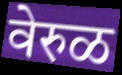
वेरुळ